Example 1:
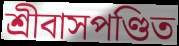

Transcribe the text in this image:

শ্রীবাসপণ্ডিত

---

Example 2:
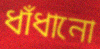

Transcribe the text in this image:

ধাঁধানো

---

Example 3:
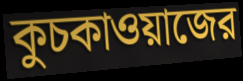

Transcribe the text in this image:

কুচকাওয়াজের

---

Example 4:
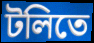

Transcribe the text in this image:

টলিতে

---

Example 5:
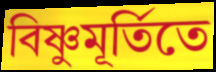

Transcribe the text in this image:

বিষ্ণুমূর্তিতে